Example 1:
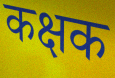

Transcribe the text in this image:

कक्षक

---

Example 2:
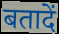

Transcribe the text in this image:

बतादें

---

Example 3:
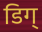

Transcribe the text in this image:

डिग्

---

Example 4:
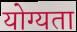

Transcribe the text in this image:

योग्यता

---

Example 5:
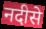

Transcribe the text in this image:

नदीसे